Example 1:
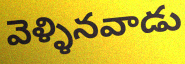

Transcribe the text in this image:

వెళ్ళినవాడు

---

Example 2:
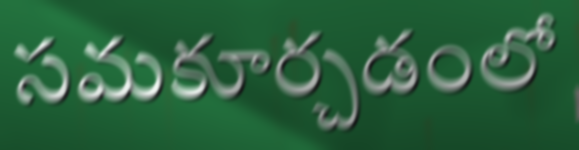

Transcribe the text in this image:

సమకూర్చడంలో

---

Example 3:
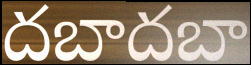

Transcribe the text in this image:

దబాదబా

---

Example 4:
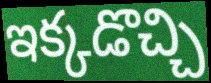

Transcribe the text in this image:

ఇక్కడొచ్చి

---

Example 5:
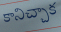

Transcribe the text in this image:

కానిచ్చాక